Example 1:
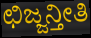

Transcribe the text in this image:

ಛಿಜ್ಜನ್ತೀತಿ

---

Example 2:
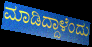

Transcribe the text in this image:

ಮಾಡಿದ್ದಾಳೆಂದು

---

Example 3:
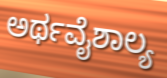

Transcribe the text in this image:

ಅರ್ಥವೈಶಾಲ್ಯ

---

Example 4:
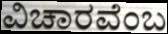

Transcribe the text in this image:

ವಿಚಾರವೆಂಬ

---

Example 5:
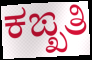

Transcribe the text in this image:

ಕಙ್ಖತಿ